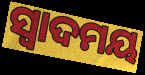
ସ୍ଵାଦମୟ